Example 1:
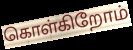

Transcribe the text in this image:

கொள்கிறோம்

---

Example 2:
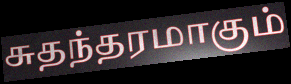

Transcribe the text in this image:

சுதந்தரமாகும்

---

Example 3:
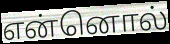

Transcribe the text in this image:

என்னொல்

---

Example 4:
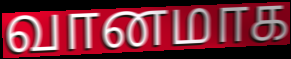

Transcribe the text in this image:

வானமாக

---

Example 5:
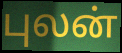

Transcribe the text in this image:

புலன்